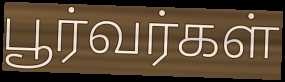
பூர்வர்கள்